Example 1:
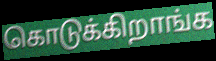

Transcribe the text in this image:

கொடுக்கிறாங்க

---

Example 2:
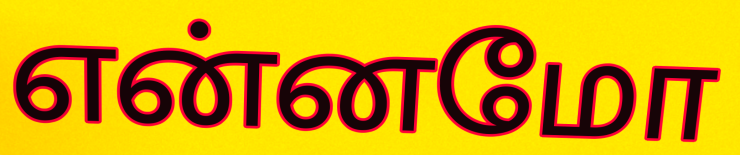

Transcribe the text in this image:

என்னமோ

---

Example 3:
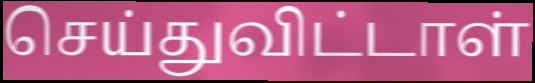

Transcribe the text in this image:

செய்துவிட்டாள்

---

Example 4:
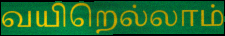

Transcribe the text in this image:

வயிறெல்லாம்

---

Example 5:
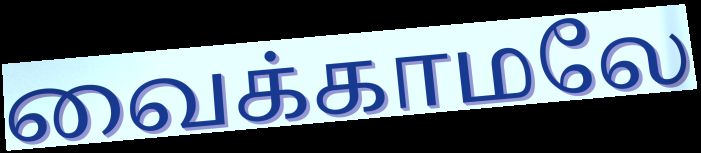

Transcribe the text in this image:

வைக்காமலே